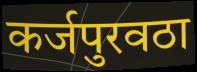
कर्जपुरवठा